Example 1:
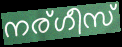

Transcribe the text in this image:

നര്ഗീസ്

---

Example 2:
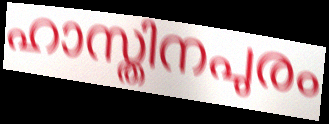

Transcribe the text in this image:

ഹാസ്തിനപുരം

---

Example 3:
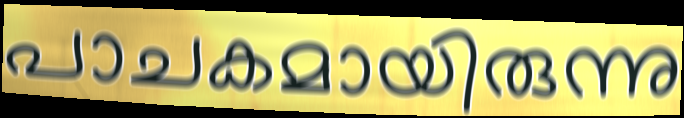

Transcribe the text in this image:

പാചകമായിരുന്നു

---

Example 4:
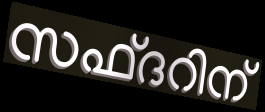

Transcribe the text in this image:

സഫ്ദറിന്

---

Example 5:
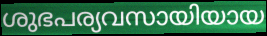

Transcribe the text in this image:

ശുഭപര്യവസായിയായ